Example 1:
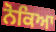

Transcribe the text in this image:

ਨੋਕਿਆ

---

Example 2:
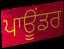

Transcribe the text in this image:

ਪਾਊਂਡਰ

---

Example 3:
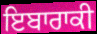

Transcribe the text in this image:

ਇਬਾਰਾਕੀ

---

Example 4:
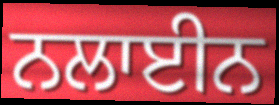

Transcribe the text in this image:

ਨਲਾਈਨ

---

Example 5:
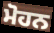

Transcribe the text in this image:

ਮੋਹਨ